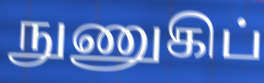
நுணுகிப்